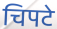
चिपटे